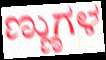
ಣ್ಣುಗಳ